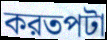
করতপটা